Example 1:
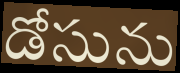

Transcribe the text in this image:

డోసును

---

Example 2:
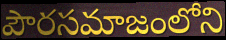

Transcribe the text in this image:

పౌరసమాజంలోని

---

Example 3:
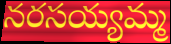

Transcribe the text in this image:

నరసయ్యమ్మ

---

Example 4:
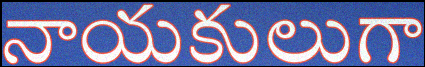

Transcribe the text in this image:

నాయకులుగా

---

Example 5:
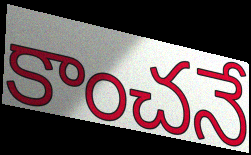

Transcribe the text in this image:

కాంచనే